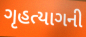
ગૃહત્યાગની